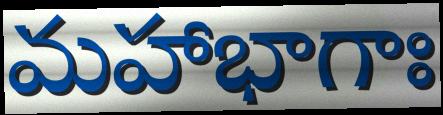
మహాభాగాః